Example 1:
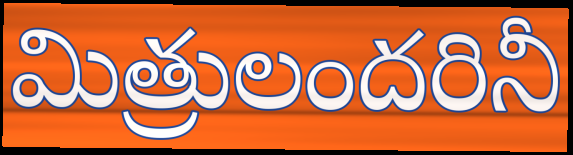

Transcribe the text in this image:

మిత్రులందరినీ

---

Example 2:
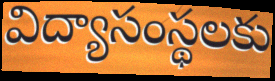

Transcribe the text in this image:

విద్యాసంస్థలకు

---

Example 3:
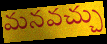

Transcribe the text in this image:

మనవచ్చు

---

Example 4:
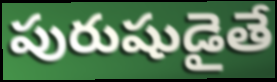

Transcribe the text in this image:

పురుషుడైతే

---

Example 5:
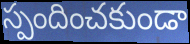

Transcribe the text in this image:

స్పందించకుండా